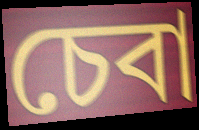
চেবা